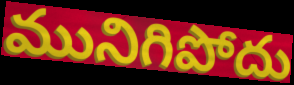
మునిగిపోదు